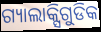
ଗ୍ୟାଲାକ୍ସିଗୁଡିକ